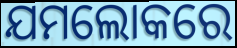
ଯମଲୋକରେ